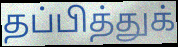
தப்பித்துக்